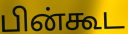
பின்கூட